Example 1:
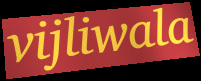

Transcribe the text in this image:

vijliwala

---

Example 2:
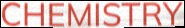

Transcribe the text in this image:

CHEMISTRY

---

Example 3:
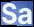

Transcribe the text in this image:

Sa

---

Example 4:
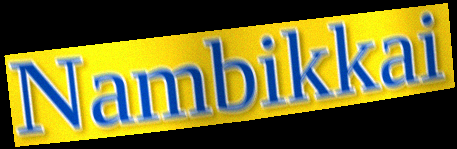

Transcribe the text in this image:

Nambikkai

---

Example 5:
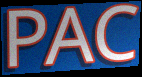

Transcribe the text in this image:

PAC